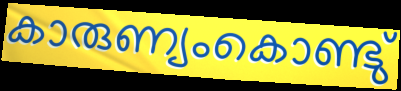
കാരുണ്യംകൊണ്ടു്